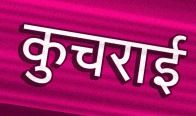
कुचराई